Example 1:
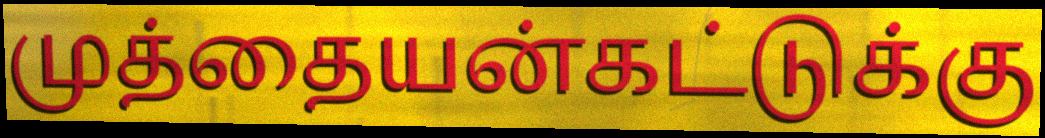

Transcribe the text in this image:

முத்தையன்கட்டுக்கு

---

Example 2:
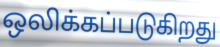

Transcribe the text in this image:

ஒலிக்கப்படுகிறது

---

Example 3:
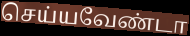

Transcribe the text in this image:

செய்யவேண்டா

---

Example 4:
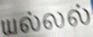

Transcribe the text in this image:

யல்லல்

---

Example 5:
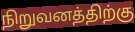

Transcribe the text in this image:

நிறுவனத்திற்கு